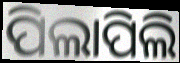
ପିଲାପିଲି